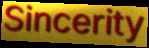
Sincerity